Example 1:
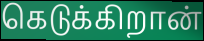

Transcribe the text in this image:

கெடுக்கிறான்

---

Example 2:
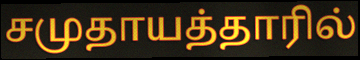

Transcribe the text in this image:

சமுதாயத்தாரில்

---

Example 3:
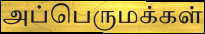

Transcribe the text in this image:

அப்பெருமக்கள்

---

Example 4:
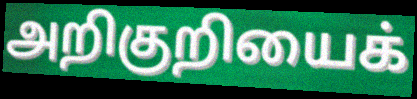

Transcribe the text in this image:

அறிகுறியைக்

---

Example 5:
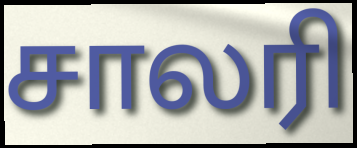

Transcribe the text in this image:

சாலரி